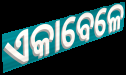
ଏକାବେଳେ